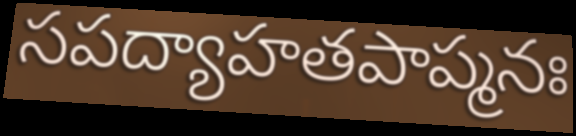
సపద్యాహతపాప్మనః